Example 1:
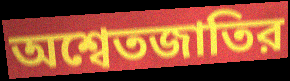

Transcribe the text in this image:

অশ্বেতজাতির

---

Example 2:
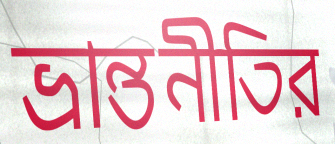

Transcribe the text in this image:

ভ্রান্তনীতির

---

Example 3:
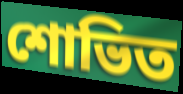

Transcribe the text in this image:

শোভিত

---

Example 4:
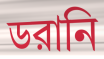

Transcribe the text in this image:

ডরানি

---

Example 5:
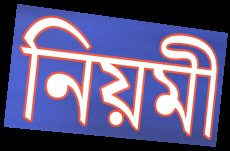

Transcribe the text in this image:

নিয়মী